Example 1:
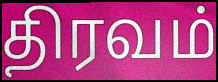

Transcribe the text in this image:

திரவம்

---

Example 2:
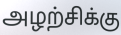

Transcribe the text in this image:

அழற்சிக்கு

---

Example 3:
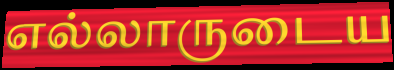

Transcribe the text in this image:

எல்லாருடைய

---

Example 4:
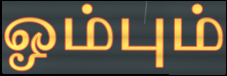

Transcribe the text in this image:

ஓம்பும்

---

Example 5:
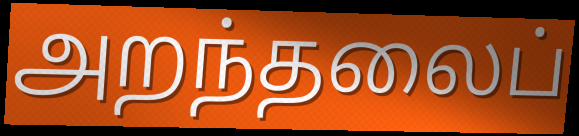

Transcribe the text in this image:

அறந்தலைப்